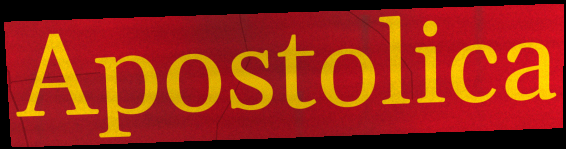
Apostolica